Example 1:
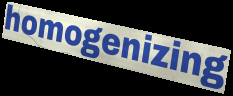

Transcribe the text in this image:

homogenizing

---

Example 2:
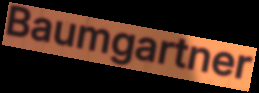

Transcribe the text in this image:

Baumgartner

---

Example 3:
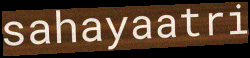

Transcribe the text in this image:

sahayaatri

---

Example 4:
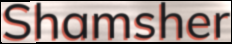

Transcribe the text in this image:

Shamsher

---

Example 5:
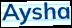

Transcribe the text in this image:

Aysha